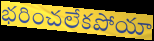
భరించలేకపోయా